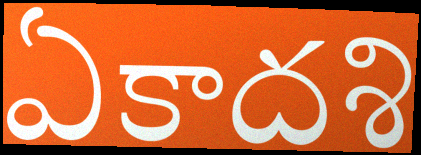
ఏకాదశి